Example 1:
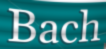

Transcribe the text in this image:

Bach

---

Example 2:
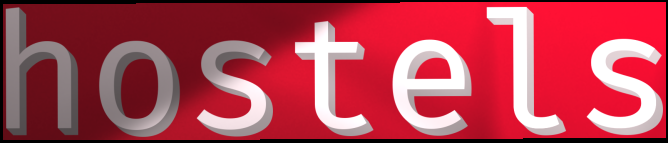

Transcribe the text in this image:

hostels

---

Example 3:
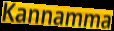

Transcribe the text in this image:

Kannamma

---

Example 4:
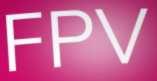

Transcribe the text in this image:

FPV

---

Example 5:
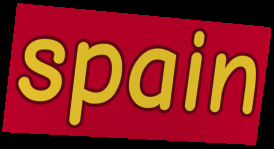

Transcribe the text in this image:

spain